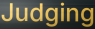
Judging